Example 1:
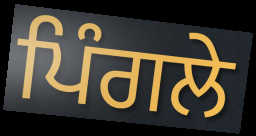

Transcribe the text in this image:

ਪਿੰਗਲੇ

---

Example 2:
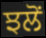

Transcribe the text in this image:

ਝਲੋਂ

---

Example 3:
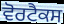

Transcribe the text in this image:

ਵੋਰਟੈਕਸ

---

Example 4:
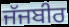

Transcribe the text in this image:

ਜੱਜਬੀਰ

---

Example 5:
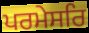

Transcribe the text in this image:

ਪਰਮੇਸਰਿ